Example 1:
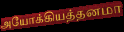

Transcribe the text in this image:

அயோக்கியத்தனமா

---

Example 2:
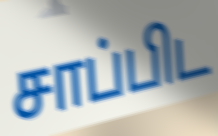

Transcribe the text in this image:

சாப்பிட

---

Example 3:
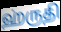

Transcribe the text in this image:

ஹ்ருதி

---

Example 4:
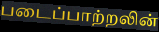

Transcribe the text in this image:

படைப்பாற்றலின்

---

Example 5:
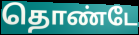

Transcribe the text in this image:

தொண்டே